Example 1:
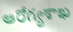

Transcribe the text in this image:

ఆరోగ్యశాఖ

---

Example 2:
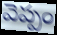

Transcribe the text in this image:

వెప్పం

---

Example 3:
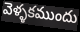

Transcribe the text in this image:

వెళ్ళకముందు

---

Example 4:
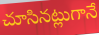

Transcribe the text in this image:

చూసినట్లుగానే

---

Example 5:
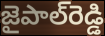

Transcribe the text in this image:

జైపాల్‌రెడ్డి